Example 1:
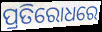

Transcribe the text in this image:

ପ୍ରତିରୋଧରେ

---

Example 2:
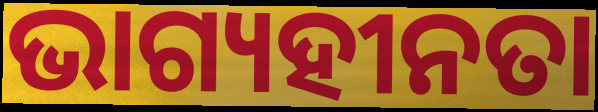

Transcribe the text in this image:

ଭାଗ୍ୟହୀନତା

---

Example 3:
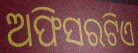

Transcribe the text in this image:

ଅଫିସରଟିଏ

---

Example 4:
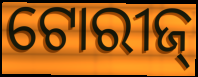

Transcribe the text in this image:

ଟୋରୀଜ୍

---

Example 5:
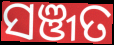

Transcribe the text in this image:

ସଞ୍ଜତ